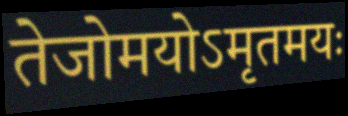
तेजोमयोऽमृतमयः